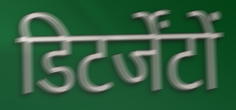
डिटर्जेंटों